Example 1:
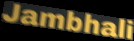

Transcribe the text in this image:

Jambhali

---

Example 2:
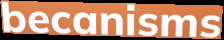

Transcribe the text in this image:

becanisms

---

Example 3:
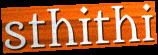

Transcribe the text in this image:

sthithi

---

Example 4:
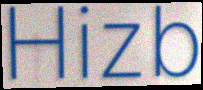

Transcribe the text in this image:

Hizb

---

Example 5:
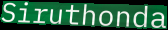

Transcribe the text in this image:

Siruthonda